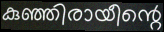
കുഞ്ഞിരായീന്റെ